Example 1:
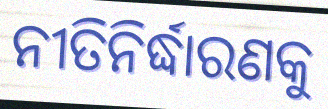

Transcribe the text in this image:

ନୀତିନିର୍ଦ୍ଧାରଣକୁ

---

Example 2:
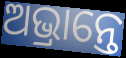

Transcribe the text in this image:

ଅଭ୍ରାନ୍ତେ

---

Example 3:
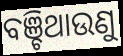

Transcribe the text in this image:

ବଞ୍ଚିଥାଉଣୁ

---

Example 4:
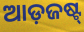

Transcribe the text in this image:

ଆଡ଼ଜଷ୍ଟ୍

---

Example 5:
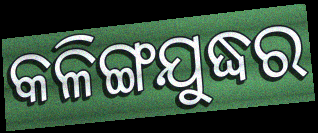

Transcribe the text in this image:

କଳିଙ୍ଗଯୁଦ୍ଧର